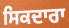
ਸਿਕਦਾਰਾ